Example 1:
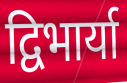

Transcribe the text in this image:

द्विभार्या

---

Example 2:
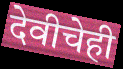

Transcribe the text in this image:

देवीचेही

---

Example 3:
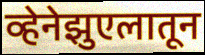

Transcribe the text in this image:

व्हेनेझुएलातून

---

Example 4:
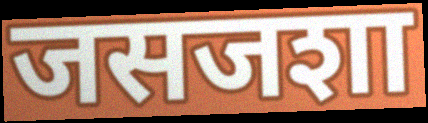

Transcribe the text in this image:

जसजशा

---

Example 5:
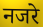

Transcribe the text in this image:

नजरे